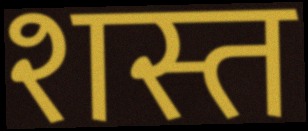
शस्त